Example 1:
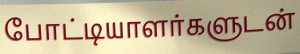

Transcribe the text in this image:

போட்டியாளர்களுடன்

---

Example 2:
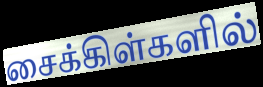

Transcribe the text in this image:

சைக்கிள்களில்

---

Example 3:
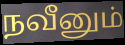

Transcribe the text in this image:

நவீனும்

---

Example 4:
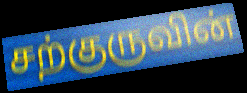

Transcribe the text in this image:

சற்குருவின்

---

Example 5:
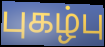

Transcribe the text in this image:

புகழ்பு